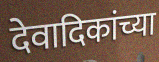
देवादिकांच्या